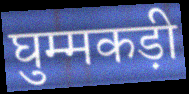
घुम्मकड़ी